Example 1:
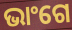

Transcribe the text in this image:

ଭାଂଗେ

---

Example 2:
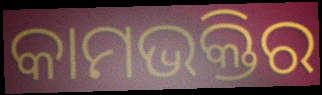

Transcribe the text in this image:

କାମଭକ୍ତିର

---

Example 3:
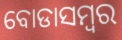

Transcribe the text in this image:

ବୋଡାସମ୍ବର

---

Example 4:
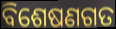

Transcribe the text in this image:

ବିଶେଷଣଗତ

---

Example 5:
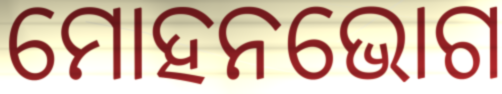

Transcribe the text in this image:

ମୋହନଭୋଗ